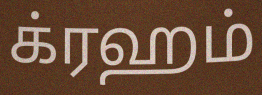
க்ரஹம்